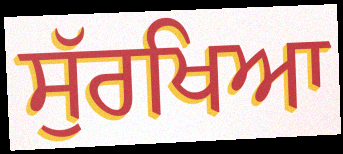
ਸੁੱਰਖਿਆ